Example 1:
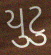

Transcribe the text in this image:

યુટુ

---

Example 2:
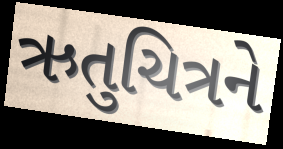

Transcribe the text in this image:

ઋતુચિત્રને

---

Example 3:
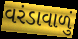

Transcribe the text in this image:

વરંડાવાળું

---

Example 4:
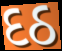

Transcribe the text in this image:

દઠ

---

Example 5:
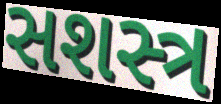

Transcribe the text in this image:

સશસ્ત્ર